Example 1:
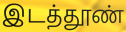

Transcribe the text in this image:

இடத்தூண்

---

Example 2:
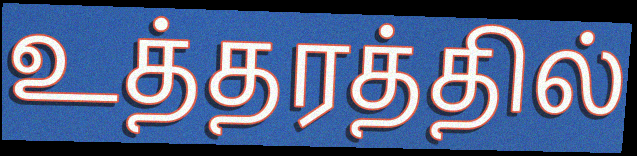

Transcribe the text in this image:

உத்தரத்தில்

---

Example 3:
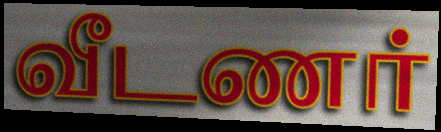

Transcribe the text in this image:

வீடணர்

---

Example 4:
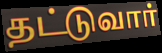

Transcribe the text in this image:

தட்டுவார்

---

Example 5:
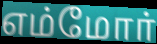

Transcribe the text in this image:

எம்மோர்